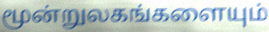
மூன்றுலகங்களையும்